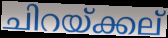
ചിറയ്ക്കല്